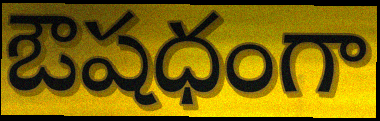
ఔషధంగా